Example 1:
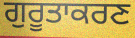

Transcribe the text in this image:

ਗੁਰੂਤਾਕਰਣ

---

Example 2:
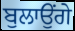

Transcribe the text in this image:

ਬੁਲਾਉਂਗੇ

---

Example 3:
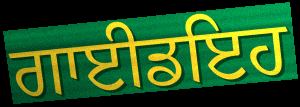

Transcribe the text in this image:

ਗਾਈਡਇਹ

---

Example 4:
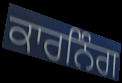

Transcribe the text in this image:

ਕਾਰਨਿੰਗ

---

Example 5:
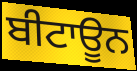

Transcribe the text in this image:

ਬੀਟਾਊਨ